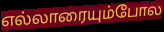
எல்லாரையும்போல